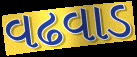
વઢવાડ